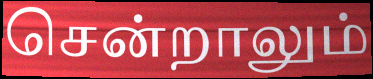
சென்றாலும்